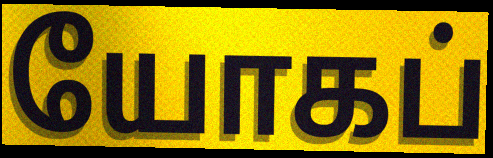
யோகப்